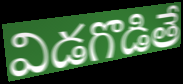
విడగొడితే